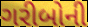
ગરીબોની